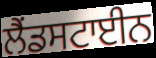
ਲੈਂਡਸਟਾਈਨ